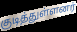
குடித்துள்ளனர்